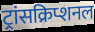
ट्रांसक्रिप्शनल